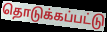
தொடுக்கப்பட்டு